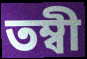
তম্বী